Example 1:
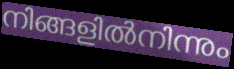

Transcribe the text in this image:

നിങ്ങളിൽനിന്നും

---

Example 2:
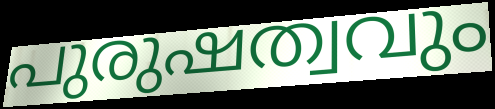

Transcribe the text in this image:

പുരുഷത്വവും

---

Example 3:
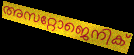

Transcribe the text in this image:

അസറ്റോജെനിക്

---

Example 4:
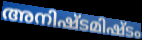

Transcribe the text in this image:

അനിഷ്ടമിഷ്ടം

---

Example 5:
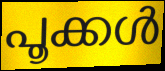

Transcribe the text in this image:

പൂക്കൾ